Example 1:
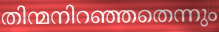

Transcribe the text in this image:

തിന്മനിറഞ്ഞതെന്നും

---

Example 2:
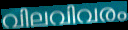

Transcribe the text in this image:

വിലവിവരം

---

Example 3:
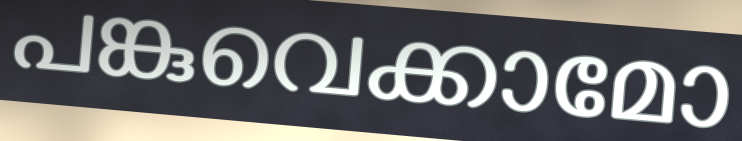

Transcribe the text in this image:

പങ്കുവെക്കാമോ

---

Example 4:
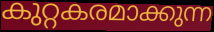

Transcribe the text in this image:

കുറ്റകരമാക്കുന്ന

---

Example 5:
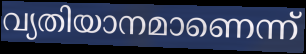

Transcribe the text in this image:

വ്യതിയാനമാണെന്ന്